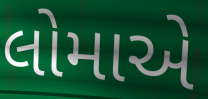
લોમાએ